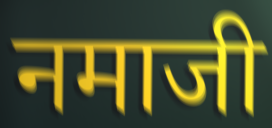
नमाजी